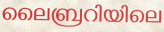
ലൈബ്രറിയിലെ